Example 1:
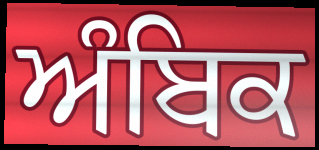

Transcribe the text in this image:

ਅੰਬਿਕ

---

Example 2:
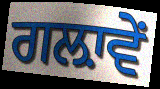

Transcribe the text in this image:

ਗਲ਼ਾਵੇਂ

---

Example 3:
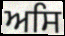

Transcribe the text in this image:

ਅਸਿ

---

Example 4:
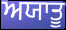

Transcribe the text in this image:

ਅਯਾਤੂ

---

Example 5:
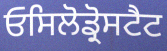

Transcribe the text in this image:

ਓਸਿਲੋਡ੍ਰੋਸਟੈਟ